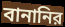
বানানির